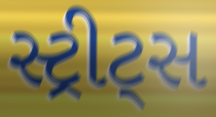
સ્ટ્રીટ્સ